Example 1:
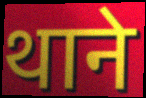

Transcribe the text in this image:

थाने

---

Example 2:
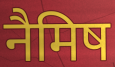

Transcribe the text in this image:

नैमिष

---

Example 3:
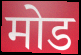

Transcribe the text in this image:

मोड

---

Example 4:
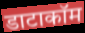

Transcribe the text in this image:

डाटाकॉम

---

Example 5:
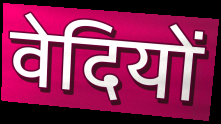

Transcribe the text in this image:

वेदियों